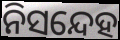
ନିସନ୍ଦେହ